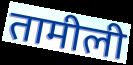
तामीली